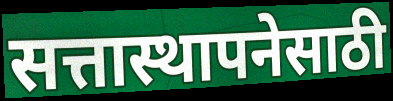
सत्तास्थापनेसाठी